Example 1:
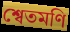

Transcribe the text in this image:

শ্বেতমণি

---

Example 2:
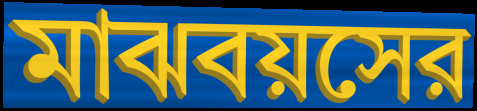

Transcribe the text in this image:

মাঝবয়সের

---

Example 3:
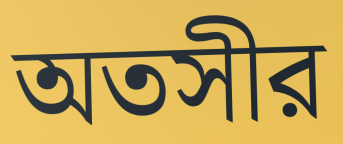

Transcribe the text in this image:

অতসীর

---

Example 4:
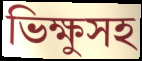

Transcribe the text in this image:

ভিক্ষুসহ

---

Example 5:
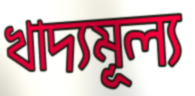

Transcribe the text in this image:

খাদ্যমূল্য